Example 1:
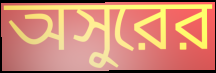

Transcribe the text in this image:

অসুরের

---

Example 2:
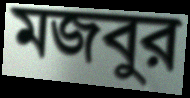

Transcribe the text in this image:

মজবুর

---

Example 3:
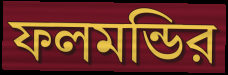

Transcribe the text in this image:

ফলমন্ডির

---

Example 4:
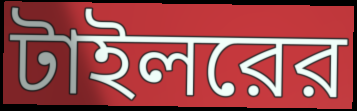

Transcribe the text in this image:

টাইলরের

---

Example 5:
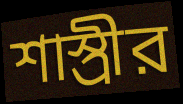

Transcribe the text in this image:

শাস্ত্রীর